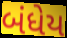
બંધેય